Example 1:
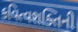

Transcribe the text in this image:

કવિત્વશક્તિની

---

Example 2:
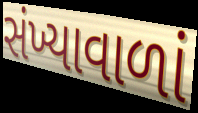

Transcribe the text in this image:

સંખ્યાવાળાં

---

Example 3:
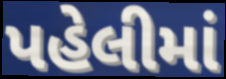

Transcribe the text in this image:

પહેલીમાં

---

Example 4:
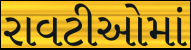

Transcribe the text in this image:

રાવટીઓમાં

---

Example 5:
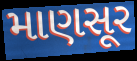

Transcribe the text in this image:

માણસૂર